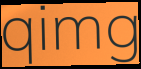
qimg